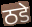
ठडे